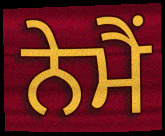
ਨੇਮੈਂ